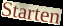
Starten